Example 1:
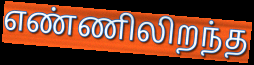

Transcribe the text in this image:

எண்ணிலிறந்த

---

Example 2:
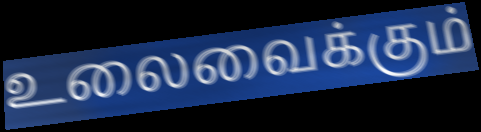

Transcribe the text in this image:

உலைவைக்கும்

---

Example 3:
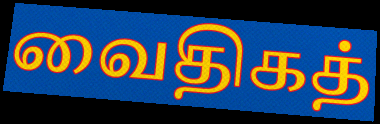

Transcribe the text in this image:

வைதிகத்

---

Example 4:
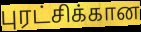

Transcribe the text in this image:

புரட்சிக்கான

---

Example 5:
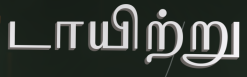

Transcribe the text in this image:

டாயிற்று